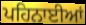
ਪਹਿਨਾਈਆਂ